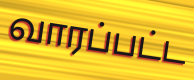
வாரப்பட்ட